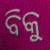
ବିକୁ